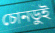
চোনডুই